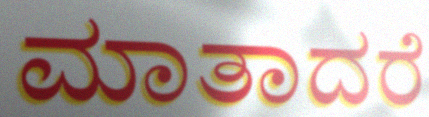
ಮಾತಾದರೆ